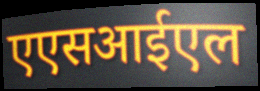
एएसआईएल